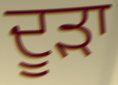
ਦੂੜਾ